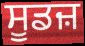
ਸੂਡਜ਼